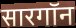
सारगॉन